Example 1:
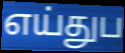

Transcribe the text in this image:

எய்துப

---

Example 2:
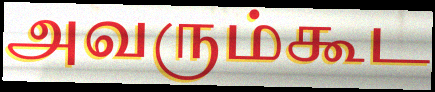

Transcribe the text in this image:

அவரும்கூட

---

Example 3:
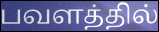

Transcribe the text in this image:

பவளத்தில்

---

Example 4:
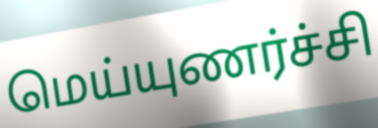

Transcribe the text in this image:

மெய்யுணர்ச்சி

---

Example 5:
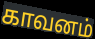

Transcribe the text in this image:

காவனம்